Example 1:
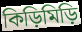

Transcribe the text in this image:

কিড়িমিড়ি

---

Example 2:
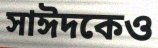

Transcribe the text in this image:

সাঈদকেও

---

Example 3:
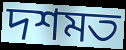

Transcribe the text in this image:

দশমত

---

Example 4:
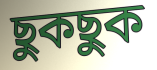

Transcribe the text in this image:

ছুকছুক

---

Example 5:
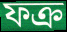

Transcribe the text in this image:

ফক্র